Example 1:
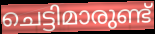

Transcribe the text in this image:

ചെട്ടിമാരുണ്ട്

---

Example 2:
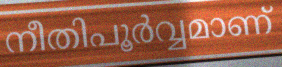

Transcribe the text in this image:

നീതിപൂർവ്വമാണ്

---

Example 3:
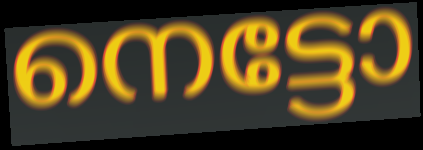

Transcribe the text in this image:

നെട്ടോ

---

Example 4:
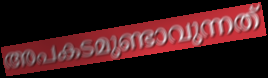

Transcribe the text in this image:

അപകടമുണ്ടാവുന്നത്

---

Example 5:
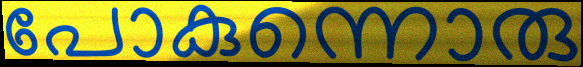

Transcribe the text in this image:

പോകുന്നൊരു